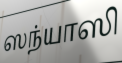
ஸந்யாஸி